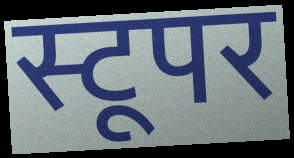
स्टूपर